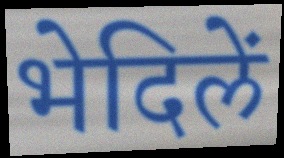
भेदिलें